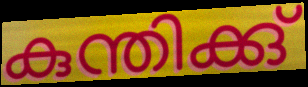
കുന്തിക്കു്